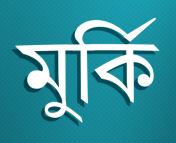
মুর্কি